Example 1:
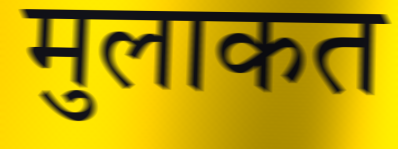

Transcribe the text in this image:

मुलाकत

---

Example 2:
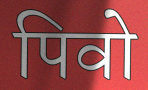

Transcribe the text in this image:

पिवो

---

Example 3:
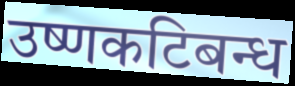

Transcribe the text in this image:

उष्णकटिबन्ध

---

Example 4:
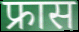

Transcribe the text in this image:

फ्रास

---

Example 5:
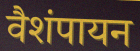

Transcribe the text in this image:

वैशंपायन